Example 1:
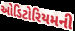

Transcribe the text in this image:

ઓડિટોરિયમની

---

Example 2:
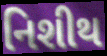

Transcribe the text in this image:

નિશીથ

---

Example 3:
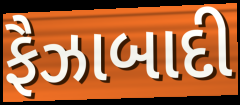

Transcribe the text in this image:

ફૈઝાબાદી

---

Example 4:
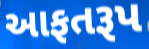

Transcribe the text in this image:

આફતરૂપ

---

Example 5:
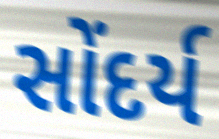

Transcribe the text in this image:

સોંદર્ય